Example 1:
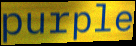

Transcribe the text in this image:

purple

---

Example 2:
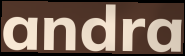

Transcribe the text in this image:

andra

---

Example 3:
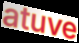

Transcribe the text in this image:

atuve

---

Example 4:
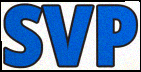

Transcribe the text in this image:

SVP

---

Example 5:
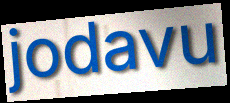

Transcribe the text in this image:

jodavu